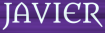
JAVIER